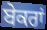
ਬੇਕਰਾਂ